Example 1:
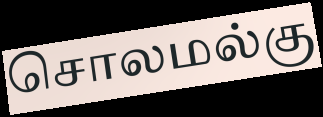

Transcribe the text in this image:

சொலமல்கு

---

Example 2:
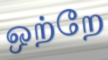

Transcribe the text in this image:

ஒற்றே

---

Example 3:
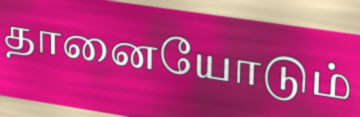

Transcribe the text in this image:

தானையோடும்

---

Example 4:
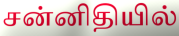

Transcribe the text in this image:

சன்னிதியில்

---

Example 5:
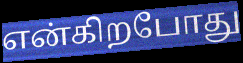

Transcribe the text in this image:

என்கிறபோது